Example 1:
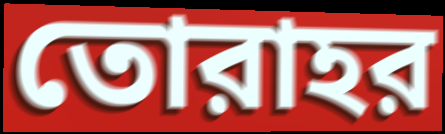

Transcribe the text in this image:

তোরাহর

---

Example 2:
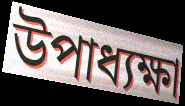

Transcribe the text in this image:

উপাধ্যক্ষা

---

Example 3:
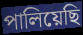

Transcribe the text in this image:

পালিয়েছি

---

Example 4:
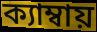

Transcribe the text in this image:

ক্যাম্বায়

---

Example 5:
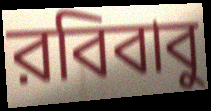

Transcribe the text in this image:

রবিবাবু